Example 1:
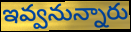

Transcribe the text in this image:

ఇవ్వనున్నారు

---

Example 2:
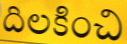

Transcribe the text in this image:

దిలకించి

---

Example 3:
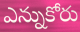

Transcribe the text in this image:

ఎన్నుకోరు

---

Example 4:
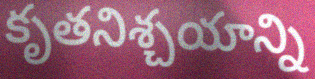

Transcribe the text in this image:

కృతనిశ్చయాన్ని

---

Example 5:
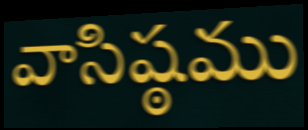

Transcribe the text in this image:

వాసిష్ఠము